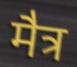
मैत्र